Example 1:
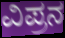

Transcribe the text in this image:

ವಿಪ್ರನ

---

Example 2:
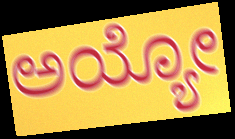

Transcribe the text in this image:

ಅಯ್ಯೋ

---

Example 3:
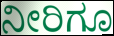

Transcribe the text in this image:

ನೀರಿಗೂ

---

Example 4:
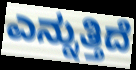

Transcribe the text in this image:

ಎನ್ನುತ್ತಿದೆ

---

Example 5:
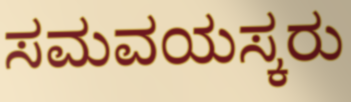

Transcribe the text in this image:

ಸಮವಯಸ್ಕರು